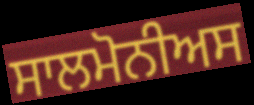
ਸਾਲਮੋਨੀਅਸ